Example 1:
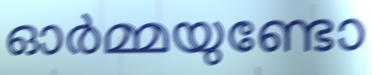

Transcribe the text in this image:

ഓർമ്മയുണ്ടോ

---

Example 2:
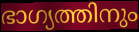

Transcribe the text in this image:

ഭാഗ്യത്തിനും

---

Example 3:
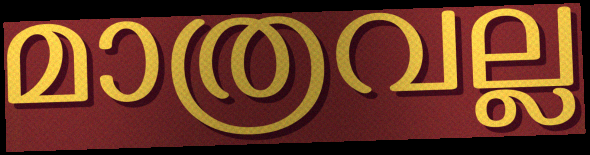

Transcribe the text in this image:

മാത്രവല്ല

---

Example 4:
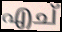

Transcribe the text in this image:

എച്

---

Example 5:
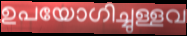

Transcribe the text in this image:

ഉപയോഗിച്ചുള്ളവ